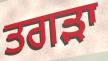
ਤਗੜਾ